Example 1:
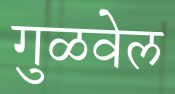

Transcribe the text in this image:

गुळवेल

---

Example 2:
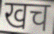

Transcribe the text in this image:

खच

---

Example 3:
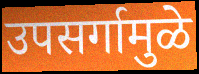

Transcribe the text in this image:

उपसर्गामुळे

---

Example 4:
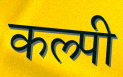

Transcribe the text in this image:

कल्पी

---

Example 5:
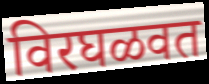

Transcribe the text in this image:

विरघळवत